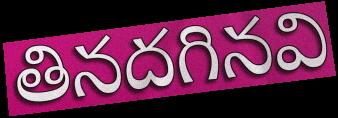
తినదగినవి